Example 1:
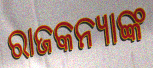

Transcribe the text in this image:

ରାଜକନ୍ୟାଙ୍କ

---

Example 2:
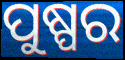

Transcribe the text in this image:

ପୁଷ୍ପର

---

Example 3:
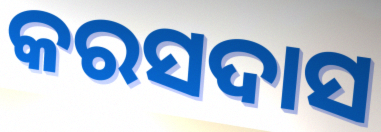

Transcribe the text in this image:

କରସଦାସ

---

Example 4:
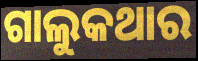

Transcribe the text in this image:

ଗାଲୁକଥାର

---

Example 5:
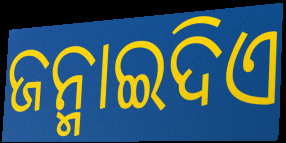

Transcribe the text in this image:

ଜନ୍ମାଇଦିଏ